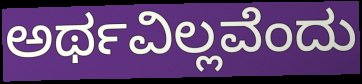
ಅರ್ಥವಿಲ್ಲವೆಂದು